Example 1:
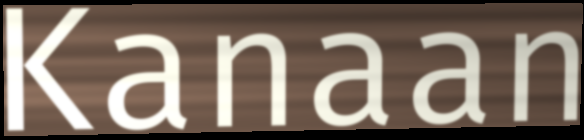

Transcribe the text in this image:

Kanaan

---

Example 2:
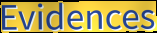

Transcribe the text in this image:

Evidences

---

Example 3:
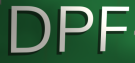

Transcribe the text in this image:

DPF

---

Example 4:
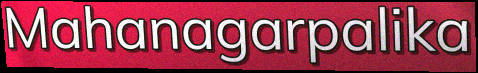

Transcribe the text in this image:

Mahanagarpalika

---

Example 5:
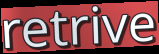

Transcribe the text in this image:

retrive